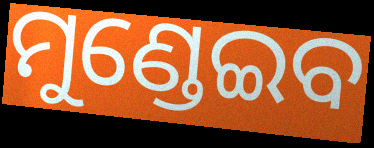
ମୁଣ୍ଡେଇବ